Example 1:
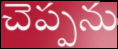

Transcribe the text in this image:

చెప్పను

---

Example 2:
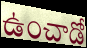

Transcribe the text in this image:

ఉంచాడో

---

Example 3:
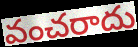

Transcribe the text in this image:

వంచరాదు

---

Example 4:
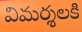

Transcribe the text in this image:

విమర్శలకి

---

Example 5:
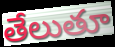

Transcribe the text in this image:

తేలుతూ